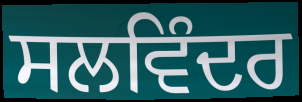
ਸਲਵਿੰਦਰ